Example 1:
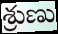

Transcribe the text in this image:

శ్రుణు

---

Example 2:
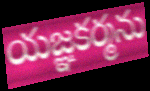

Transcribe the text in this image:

యజ్ఞకర్మను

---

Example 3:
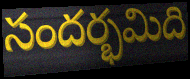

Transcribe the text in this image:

సందర్భమిది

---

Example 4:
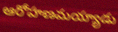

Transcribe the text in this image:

ఆరోహణమయ్యాడు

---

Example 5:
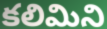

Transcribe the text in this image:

కలిమిని